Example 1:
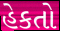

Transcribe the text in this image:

હેકતો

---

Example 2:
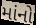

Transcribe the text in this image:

માંનો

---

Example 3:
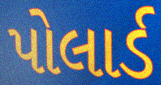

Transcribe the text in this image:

પોલાર્ડ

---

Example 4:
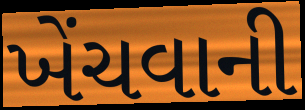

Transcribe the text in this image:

ખેંચવાની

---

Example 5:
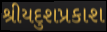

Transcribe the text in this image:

શ્રીયદુશપ્રકાશ